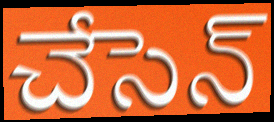
చేసెన్